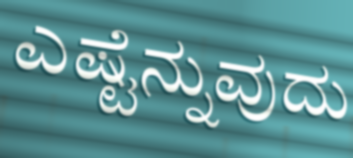
ಎಷ್ಟೆನ್ನುವುದು